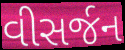
વીસર્જન